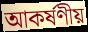
আকৰ্ষণীয়